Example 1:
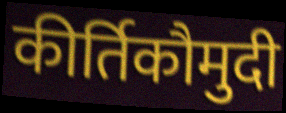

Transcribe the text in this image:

कीर्तिकौमुदी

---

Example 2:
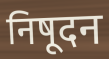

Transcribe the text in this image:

निषूदन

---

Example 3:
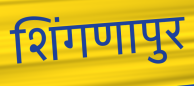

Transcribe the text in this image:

शिंगणापुर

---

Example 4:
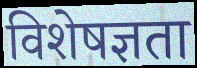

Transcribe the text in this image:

विशेषज्ञता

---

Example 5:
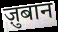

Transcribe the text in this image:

ज़ुबान